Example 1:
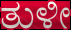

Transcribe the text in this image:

ತುಳೀ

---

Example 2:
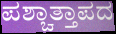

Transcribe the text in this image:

ಪಶ್ಚಾತ್ತಾಪದ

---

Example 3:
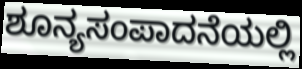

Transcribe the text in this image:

ಶೂನ್ಯಸಂಪಾದನೆಯಲ್ಲಿ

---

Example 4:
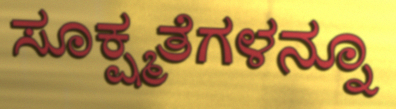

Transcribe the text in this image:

ಸೂಕ್ಷ್ಮತೆಗಳನ್ನೂ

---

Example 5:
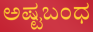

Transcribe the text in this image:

ಅಷ್ಟಬಂಧ